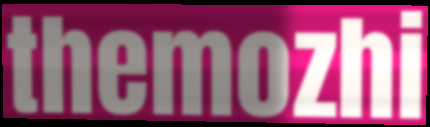
themozhi